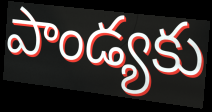
పాండ్యకు